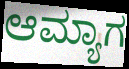
ಆಮ್ಯಾಗ